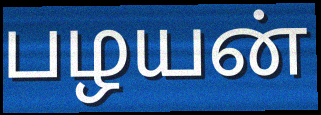
பழயன்